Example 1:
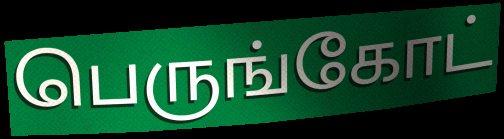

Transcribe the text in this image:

பெருங்கோட்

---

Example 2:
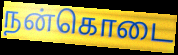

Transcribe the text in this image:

நன்கொடை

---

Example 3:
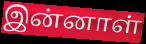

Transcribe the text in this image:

இன்னாள்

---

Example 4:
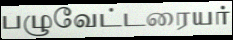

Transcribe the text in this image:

பழுவேட்டரையர்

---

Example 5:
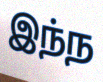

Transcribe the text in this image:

இந்ந